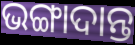
ଭଙ୍ଗାଦାନ୍ତ